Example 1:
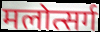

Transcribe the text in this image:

मलोत्सर्ग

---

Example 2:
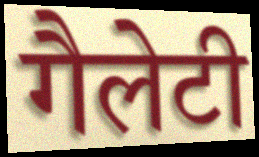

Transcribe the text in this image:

गैलेटी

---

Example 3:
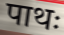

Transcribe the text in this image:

पाथः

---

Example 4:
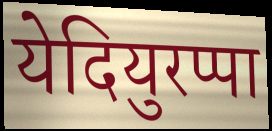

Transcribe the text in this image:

येदियुरप्पा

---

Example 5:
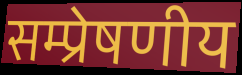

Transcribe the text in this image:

सम्प्रेषणीय